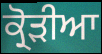
ਕ੍ਰੋੜੀਆ